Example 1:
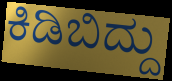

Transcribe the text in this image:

ಕಿಡಿಬಿದ್ದು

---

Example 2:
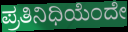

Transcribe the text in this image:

ಪ್ರತಿನಿಧಿಯೆಂದೇ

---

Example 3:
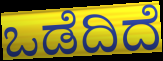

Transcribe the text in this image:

ಒಡೆದಿದೆ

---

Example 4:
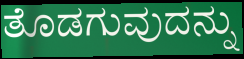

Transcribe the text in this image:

ತೊಡಗುವುದನ್ನು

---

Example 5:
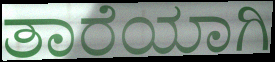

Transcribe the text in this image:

ತಾರೆಯಾಗಿ